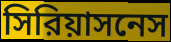
সিরিয়াসনেস